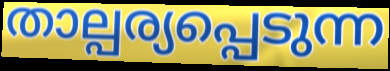
താല്പര്യപ്പെടുന്ന